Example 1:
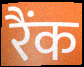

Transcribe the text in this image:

रैंक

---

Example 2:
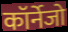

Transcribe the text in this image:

कॉर्नेजो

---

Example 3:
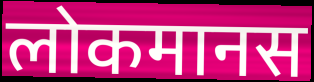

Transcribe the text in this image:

लोकमानस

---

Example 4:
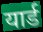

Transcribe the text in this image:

यार्ड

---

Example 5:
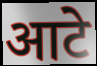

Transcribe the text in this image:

आटे